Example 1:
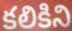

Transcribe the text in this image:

కలికిని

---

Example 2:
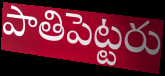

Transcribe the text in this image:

పాతిపెట్టరు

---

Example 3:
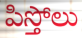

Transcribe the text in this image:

పిస్తోలు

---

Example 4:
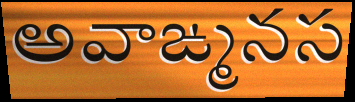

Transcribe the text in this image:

అవాఙ్మనస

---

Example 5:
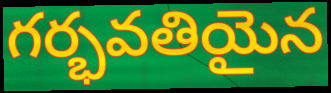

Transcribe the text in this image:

గర్భవతియైన